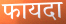
फायदा